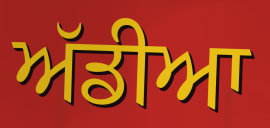
ਅੱਡੀਆ